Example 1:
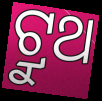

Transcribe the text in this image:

ଟ୍ରୁଥ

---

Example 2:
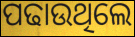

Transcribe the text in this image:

ପଢାଉଥିଲେ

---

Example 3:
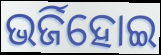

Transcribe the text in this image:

ଭର୍ଜିହୋଇ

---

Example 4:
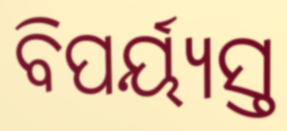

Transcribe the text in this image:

ବିପର୍ୟ୍ୟସ୍ତ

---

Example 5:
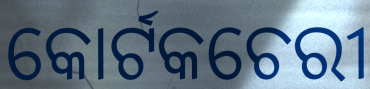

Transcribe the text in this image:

କୋର୍ଟକଚେରୀ